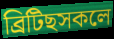
ব্ৰিটিছসকলে